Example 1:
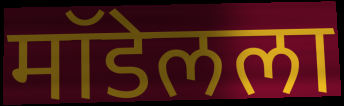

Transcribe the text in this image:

मॉडेलला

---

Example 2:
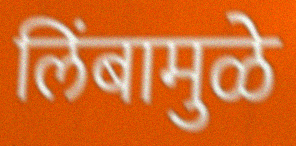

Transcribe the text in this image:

लिंबामुळे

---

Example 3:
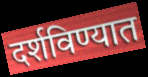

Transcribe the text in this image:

दर्शविण्यात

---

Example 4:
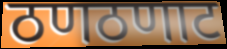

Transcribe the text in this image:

ठणठणाट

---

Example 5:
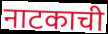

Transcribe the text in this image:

नाटकाची